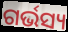
ଗର୍ଭସ୍ୟ